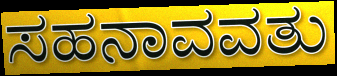
ಸಹನಾವವತು